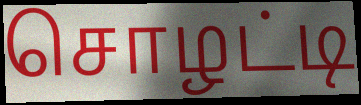
சொழட்டி